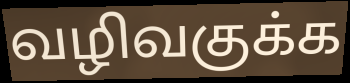
வழிவகுக்க